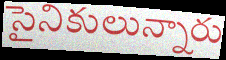
సైనికులున్నారు